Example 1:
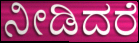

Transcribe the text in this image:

ನೀಡಿದರೆ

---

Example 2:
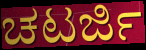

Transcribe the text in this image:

ಚಟರ್ಜಿ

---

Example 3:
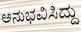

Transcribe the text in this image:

ಅನುಭವಿಸಿದ್ದು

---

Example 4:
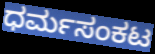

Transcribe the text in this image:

ಧರ್ಮಸಂಕಟ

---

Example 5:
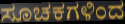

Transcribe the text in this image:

ಸೂಚಕಗಳಿಂದ